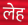
लेह